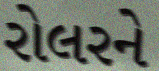
રોલરને